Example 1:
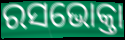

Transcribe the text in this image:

ରସଭୋକ୍ତା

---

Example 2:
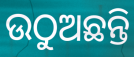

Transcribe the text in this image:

ଉଠୁଅଛନ୍ତି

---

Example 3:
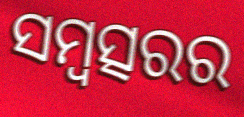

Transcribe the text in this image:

ସମ୍ବତ୍ସରର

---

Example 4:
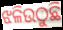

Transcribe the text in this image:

ଝଳିଉଠୁଛି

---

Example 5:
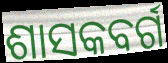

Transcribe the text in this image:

ଶାସକବର୍ଗ